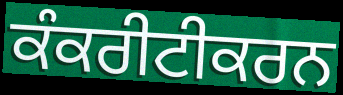
ਕੰਕਰੀਟੀਕਰਨ